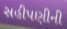
સહીપણીની